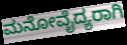
ಮನೋವೈದ್ಯರಾಗಿ